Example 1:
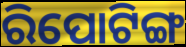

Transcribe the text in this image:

ରିପୋଟିଙ୍ଗ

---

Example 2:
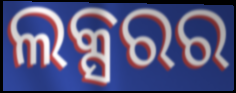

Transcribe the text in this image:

ଲକ୍ସରର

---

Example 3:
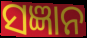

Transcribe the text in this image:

ସଜ୍ଞାନ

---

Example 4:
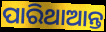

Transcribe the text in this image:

ପାରିଥାଆନ୍ତ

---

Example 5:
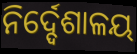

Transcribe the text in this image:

ନିର୍ଦ୍ଦେଶାଳୟ